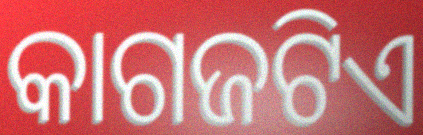
କାଗଜଟିଏ